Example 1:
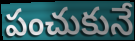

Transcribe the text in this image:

పంచుకునే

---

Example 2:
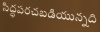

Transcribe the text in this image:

సిద్ధపరచబడియున్నది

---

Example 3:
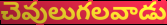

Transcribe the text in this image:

చెవులుగలవాడు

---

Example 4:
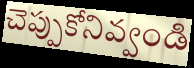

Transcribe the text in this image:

చెప్పుకోనివ్వండి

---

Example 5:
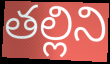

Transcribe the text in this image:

తల్లిని